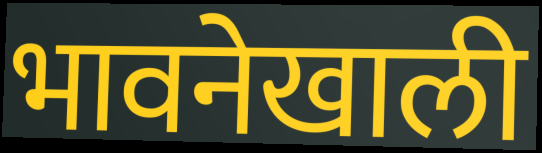
भावनेखाली